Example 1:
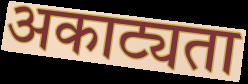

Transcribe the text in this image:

अकाट्यता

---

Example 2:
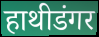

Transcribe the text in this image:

हाथीडंगर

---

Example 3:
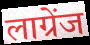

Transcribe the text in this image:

लाग्रेंज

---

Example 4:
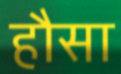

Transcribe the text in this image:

हौसा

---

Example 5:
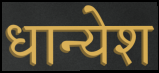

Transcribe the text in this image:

धान्येश